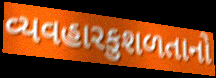
વ્યવહારકુશળતાનો